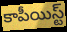
కాపీయిస్ట్